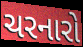
ચરનારો